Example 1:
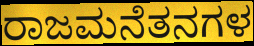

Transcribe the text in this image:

ರಾಜಮನೆತನಗಳ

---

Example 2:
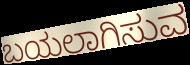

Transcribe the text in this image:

ಬಯಲಾಗಿಸುವ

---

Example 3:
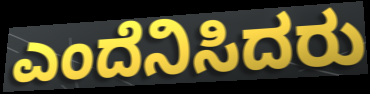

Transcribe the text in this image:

ಎಂದೆನಿಸಿದರು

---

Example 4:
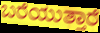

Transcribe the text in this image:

ಬರೆಯುತ್ತಾರೆ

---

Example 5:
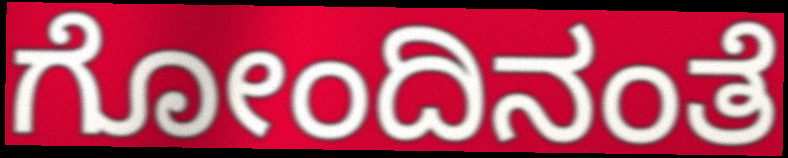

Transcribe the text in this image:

ಗೋಂದಿನಂತೆ